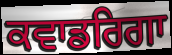
ਕਵਾਡਰਿਗਾ